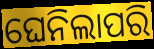
ଘେନିଲାପରି